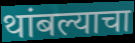
थांबल्याचा